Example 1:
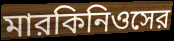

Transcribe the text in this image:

মারকিনিওসের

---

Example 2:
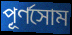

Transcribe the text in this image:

পূর্ণসোম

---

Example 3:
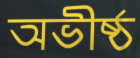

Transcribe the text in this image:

অভীষ্ঠ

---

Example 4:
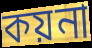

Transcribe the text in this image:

কয়না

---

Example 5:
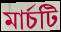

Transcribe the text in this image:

মার্চটি